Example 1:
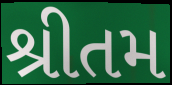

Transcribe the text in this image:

શ્રીતમ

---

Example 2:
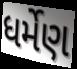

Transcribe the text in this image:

ધર્મેણ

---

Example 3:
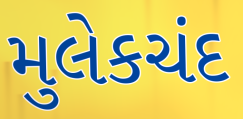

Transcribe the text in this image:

મુલેકચંદ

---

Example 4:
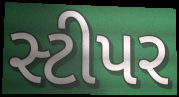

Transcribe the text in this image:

સ્ટીપર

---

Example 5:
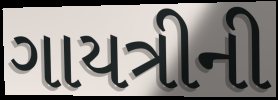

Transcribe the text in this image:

ગાયત્રીની